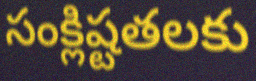
సంక్లిష్టతలకు